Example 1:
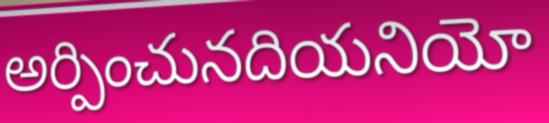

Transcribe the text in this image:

అర్పించునదియనియో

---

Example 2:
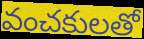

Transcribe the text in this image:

వంచకులతో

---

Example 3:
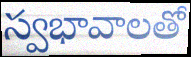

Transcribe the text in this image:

స్వభావాలతో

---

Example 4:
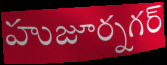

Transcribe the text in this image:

హుజూర్నగర్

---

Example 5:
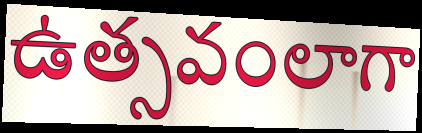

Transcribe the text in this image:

ఉత్సవంలాగా